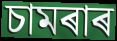
চামৰাৰ